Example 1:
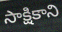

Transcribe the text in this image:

సాక్షికాని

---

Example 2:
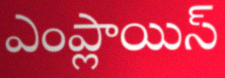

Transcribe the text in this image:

ఎంప్లాయిస్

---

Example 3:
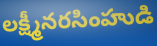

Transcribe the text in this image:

లక్ష్మీనరసింహుడి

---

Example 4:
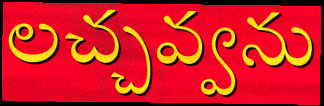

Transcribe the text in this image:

లచ్చవ్వను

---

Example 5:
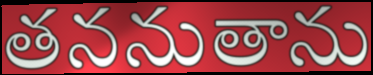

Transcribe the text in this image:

తననుతాను